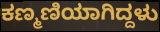
ಕಣ್ಮಣಿಯಾಗಿದ್ದಳು